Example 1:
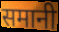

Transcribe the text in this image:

समानी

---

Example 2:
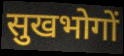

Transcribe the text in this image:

सुखभोगों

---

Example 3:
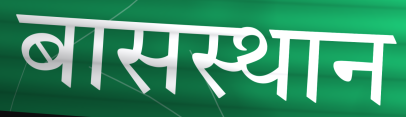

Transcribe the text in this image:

बासस्थान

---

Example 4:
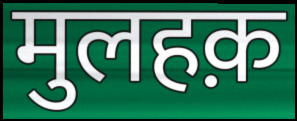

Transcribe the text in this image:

मुलहक़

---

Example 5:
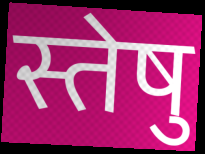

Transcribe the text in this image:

स्तेषु